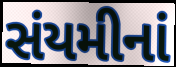
સંયમીનાં